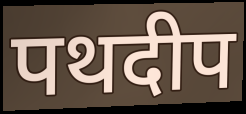
पथदीप